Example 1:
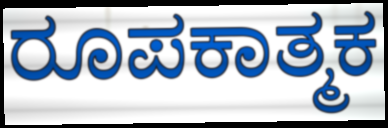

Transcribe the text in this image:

ರೂಪಕಾತ್ಮಕ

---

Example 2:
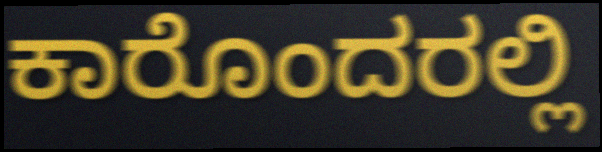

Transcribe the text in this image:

ಕಾರೊಂದರಲ್ಲಿ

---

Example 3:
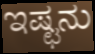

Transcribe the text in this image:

ಇಷ್ಟನು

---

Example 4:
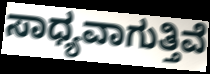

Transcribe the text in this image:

ಸಾಧ್ಯವಾಗುತ್ತಿವೆ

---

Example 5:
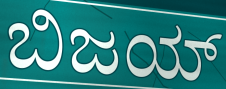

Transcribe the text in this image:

ಬಿಜಯ್